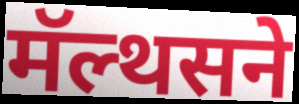
मॅल्थसने